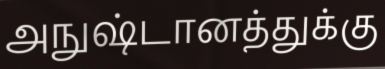
அநுஷ்டானத்துக்கு